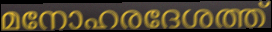
മനോഹരദേശത്ത്